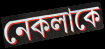
নেকলাকে